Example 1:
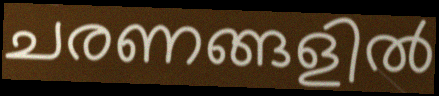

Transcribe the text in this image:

ചരണങ്ങളിൽ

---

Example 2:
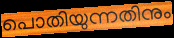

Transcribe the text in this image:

പൊതിയുന്നതിനും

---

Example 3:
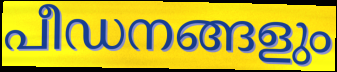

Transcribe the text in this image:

പീഡനങ്ങളും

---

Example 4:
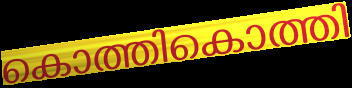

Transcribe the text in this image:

കൊത്തികൊത്തി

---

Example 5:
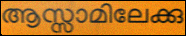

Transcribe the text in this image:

ആസ്സാമിലേക്കു